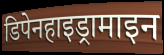
डिपेनहाइड्रामाइन